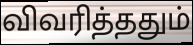
விவரித்ததும்